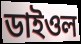
ডাইওল